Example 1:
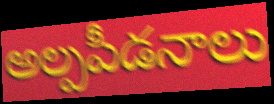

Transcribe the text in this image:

అల్పపీడనాలు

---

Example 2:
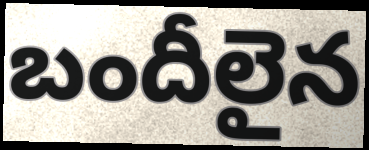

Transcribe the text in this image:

బందీలైన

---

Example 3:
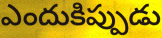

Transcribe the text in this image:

ఎందుకిప్పుడు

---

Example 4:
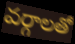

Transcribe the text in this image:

వర్గాలతో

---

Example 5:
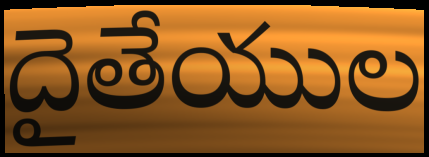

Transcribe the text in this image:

దైతేయుల